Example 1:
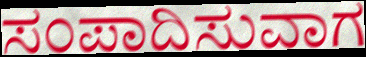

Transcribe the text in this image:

ಸಂಪಾದಿಸುವಾಗ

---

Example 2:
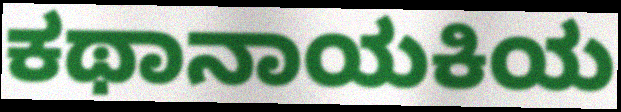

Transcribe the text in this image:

ಕಥಾನಾಯಕಿಯ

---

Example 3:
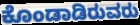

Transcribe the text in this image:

ಕೊಂಡಾಡಿರುವರು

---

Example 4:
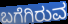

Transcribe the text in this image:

ಬಗೆಗಿರುವ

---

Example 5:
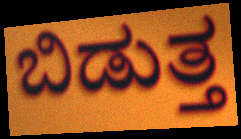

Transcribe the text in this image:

ಬಿಡುತ್ತ